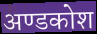
अण्डकोश